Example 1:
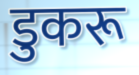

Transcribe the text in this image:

डुकरू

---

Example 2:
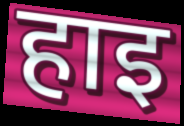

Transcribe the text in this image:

हाइ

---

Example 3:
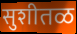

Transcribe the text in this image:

सुशीतळ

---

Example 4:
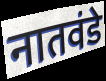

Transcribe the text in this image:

नातवंडे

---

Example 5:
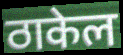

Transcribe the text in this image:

ठाकेल